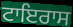
ਟਾਇਰਾਸ